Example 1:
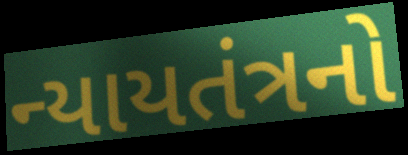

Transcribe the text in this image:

ન્યાયતંત્રનો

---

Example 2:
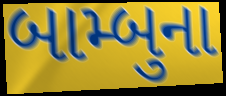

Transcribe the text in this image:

બામ્બુના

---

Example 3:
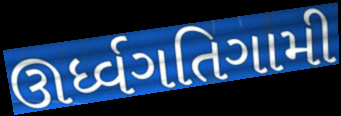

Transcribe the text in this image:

ઊર્ધ્વગતિગામી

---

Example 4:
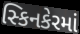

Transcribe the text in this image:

સ્કિનકેરમાં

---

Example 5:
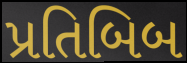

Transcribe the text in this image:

પ્રતિબિબ